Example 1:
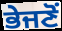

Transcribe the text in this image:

ਭੇਜਣੋਂ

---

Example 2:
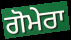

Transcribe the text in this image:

ਗੋਮੇਰਾ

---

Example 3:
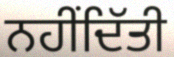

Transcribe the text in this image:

ਨਹੀਂਦਿੱਤੀ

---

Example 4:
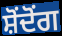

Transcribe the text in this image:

ਸ਼ੋਂਦੋਂਗ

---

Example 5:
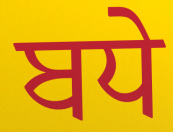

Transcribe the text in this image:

ਬਧੇ